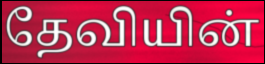
தேவியின்